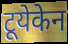
टूयेकेन